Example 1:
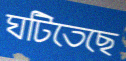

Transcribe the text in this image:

ঘটিতেছে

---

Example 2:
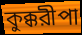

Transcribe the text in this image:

কুক্করীপা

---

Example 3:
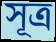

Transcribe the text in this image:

সূত্র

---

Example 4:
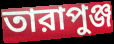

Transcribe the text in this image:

তারাপুঞ্জ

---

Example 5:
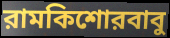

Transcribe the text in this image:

রামকিশোরবাবু